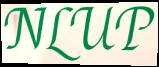
NLUP